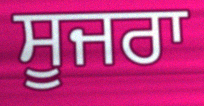
ਸੂਜਰਾ